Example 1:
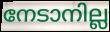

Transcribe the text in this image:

നേടാനില്ല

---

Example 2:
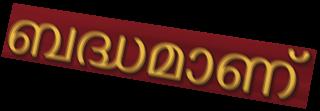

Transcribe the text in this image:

ബദ്ധമാണ്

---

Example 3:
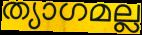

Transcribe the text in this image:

ത്യാഗമല്ല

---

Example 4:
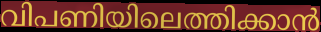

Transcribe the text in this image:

വിപണിയിലെത്തിക്കാൻ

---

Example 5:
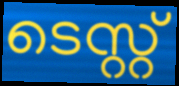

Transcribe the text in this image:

ടെസ്റ്റ്